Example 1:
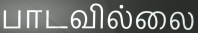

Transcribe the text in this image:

பாடவில்லை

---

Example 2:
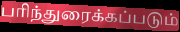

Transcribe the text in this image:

பரிந்துரைக்கப்படும்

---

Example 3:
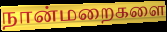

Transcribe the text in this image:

நான்மறைகளை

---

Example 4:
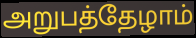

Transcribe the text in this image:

அறுபத்தேழாம்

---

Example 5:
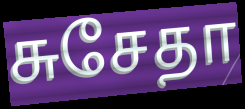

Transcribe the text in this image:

சுசேதா